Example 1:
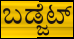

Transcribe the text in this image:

ಬಡ್ಜೆಟ್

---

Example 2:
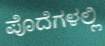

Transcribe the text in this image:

ಪೊದೆಗಳಲ್ಲಿ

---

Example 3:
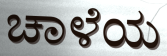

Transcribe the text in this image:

ಚಾಳೆಯ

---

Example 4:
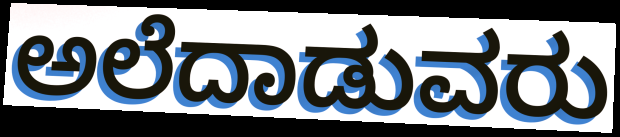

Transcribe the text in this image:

ಅಲೆದಾಡುವರು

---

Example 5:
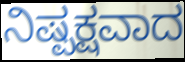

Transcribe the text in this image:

ನಿಷ್ಪಕ್ಷವಾದ